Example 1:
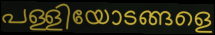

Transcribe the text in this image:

പള്ളിയോടങ്ങളെ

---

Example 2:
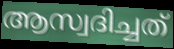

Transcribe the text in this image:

ആസ്വദിച്ചത്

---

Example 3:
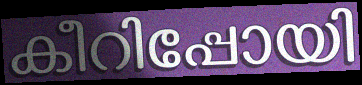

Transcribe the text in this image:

കീറിപ്പോയി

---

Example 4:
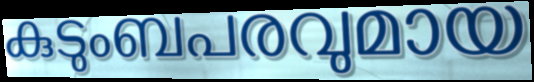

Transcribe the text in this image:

കുടുംബപരവുമായ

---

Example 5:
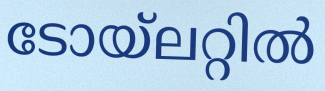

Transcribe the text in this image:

ടോയ്ലറ്റിൽ